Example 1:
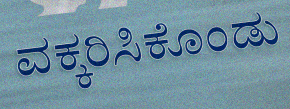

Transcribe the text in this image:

ವಕ್ಕರಿಸಿಕೊಂಡು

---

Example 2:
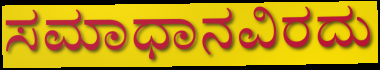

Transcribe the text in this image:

ಸಮಾಧಾನವಿರದು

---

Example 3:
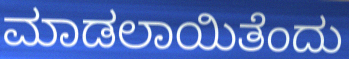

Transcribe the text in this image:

ಮಾಡಲಾಯಿತೆಂದು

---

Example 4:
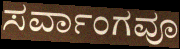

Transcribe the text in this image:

ಸರ್ವಾಂಗವೂ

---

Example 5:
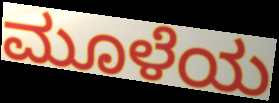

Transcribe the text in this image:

ಮೂಳೆಯ